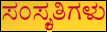
ಸಂಸ್ಕೃತಿಗಳು